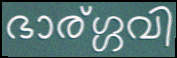
ഭാര്ഗ്ഗവി